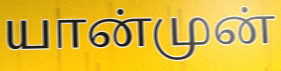
யான்முன்